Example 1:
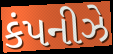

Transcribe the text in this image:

કંપનીઝે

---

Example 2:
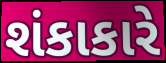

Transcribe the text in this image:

શંકાકારે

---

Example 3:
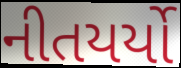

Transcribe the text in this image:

નીતયર્યો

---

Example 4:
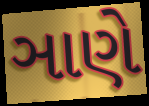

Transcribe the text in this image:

ઞાણે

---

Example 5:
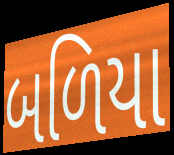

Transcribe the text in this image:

બળિયા